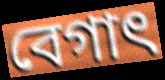
বেগাৎ